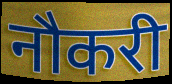
नौकरी